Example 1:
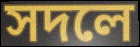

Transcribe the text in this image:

সদলে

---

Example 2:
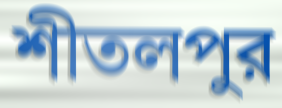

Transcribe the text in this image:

শীতলপুর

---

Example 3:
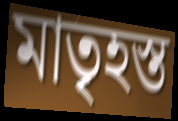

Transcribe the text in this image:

মাতৃহস্ত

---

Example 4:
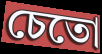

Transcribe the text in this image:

চেতো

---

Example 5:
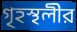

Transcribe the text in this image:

গৃহস্থলীর